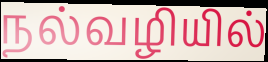
நல்வழியில்